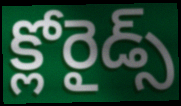
క్లోరైడ్స్